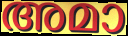
അമാ